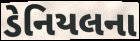
ડેનિયલના